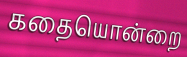
கதையொன்றை